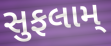
સુફલામ્